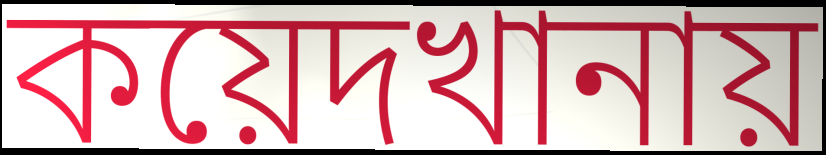
কয়েদখানায়